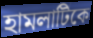
হামলাটিকে